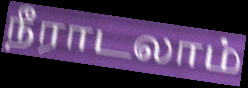
நீராடலாம்